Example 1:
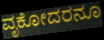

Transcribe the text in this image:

ವೃಕೋದರನೂ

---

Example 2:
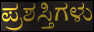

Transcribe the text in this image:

ಪ್ರಶಸ್ತಿಗಳು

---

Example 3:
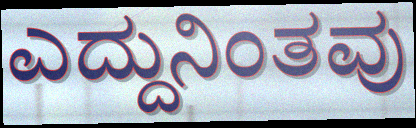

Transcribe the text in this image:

ಎದ್ದುನಿಂತವು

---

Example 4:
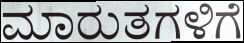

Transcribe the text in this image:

ಮಾರುತಗಳಿಗೆ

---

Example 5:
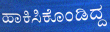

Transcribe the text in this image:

ಹಾಕಿಸಿಕೊಂಡಿದ್ದ